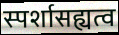
स्पर्शासह्यत्व